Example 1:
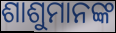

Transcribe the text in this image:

ଶାଶୁମାନଙ୍କ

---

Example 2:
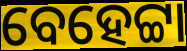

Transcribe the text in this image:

ବେହେଟ୍ଟା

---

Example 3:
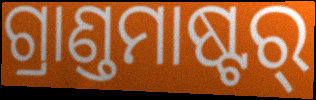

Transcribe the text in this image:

ଗ୍ରାଣ୍ଡମାଷ୍ଟର୍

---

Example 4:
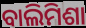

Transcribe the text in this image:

ବାଲିମିଶା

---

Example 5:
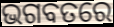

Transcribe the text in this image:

ଭଗବତରେ